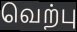
வெற்பு